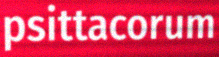
psittacorum